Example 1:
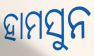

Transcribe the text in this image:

ହାମସୁନ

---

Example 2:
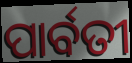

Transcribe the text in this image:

ପାର୍ବତୀ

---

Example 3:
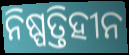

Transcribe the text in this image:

ନିଷ୍ପତ୍ତିହୀନ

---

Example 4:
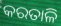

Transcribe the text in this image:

କରତାଳି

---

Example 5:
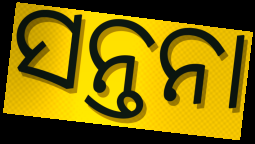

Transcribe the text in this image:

ସନ୍ତନା